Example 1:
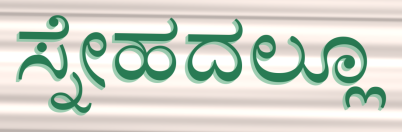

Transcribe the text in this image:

ಸ್ನೇಹದಲ್ಲೂ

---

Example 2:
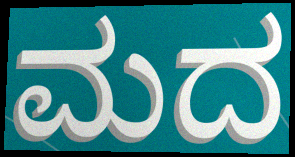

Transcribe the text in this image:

ಮದ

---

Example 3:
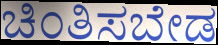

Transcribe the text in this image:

ಚಿಂತಿಸಬೇಡ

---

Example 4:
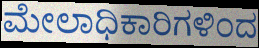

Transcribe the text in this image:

ಮೇಲಾಧಿಕಾರಿಗಳಿಂದ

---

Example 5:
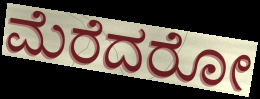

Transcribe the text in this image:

ಮೆರೆದರೋ